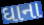
ઘાના